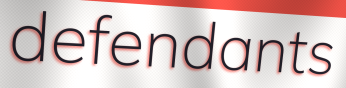
defendants